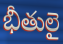
భీతులై